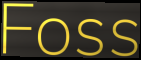
Foss